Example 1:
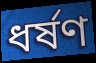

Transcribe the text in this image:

ধর্ষণ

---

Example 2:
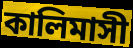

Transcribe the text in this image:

কালিমাসী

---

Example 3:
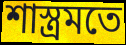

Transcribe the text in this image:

শাস্ত্রমতে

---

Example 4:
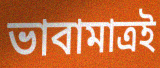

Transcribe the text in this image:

ভাবামাত্রই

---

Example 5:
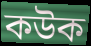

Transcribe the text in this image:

কউক